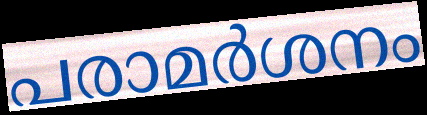
പരാമർശനം